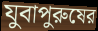
যুবাপুরুষের